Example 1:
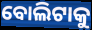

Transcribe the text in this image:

ବୋଲିଟାକୁ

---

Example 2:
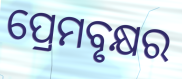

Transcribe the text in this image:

ପ୍ରେମବୃକ୍ଷର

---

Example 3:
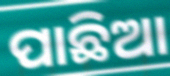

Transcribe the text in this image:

ପାଛିଆ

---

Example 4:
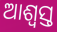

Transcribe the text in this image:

ଆଶ୍ଵସ୍ତ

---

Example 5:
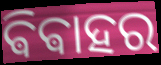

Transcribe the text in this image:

ଵିଵାହର